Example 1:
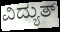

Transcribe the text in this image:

ವಿದ್ಯುತ್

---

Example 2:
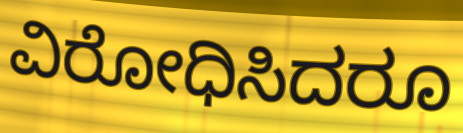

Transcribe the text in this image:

ವಿರೋಧಿಸಿದರೂ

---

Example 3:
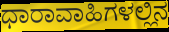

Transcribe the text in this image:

ಧಾರಾವಾಹಿಗಳಲ್ಲಿನ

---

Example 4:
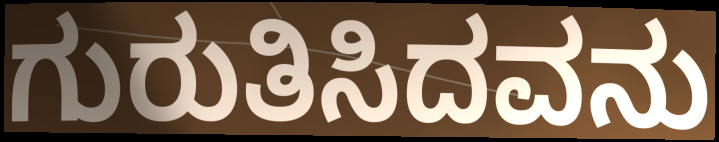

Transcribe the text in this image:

ಗುರುತಿಸಿದವನು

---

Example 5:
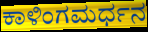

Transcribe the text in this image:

ಕಾಳಿಂಗಮರ್ಧನ